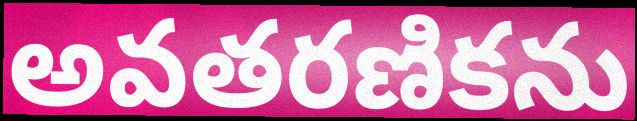
అవతరణికను